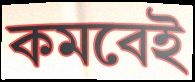
কমবেই